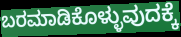
ಬರಮಾಡಿಕೊಳ್ಳುವುದಕ್ಕೆ